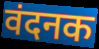
वंदनक